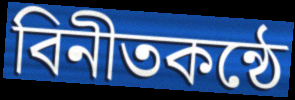
বিনীতকন্ঠে